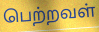
பெற்றவள்